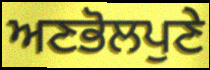
ਅਣਭੋਲਪੁਣੇ